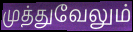
முத்துவேலும்